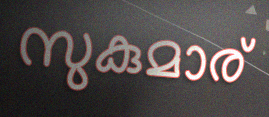
സുകുമാര്